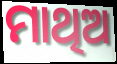
ମାଥିଅ